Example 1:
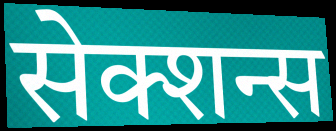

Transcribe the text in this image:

सेक्शन्स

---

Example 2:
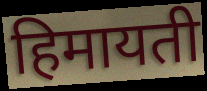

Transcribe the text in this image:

हिमायती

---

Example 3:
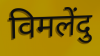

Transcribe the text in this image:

विमलेंदु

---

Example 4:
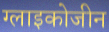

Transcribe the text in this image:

ग्लाइकोजीन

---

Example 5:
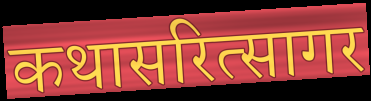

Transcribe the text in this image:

कथासरित्सागर